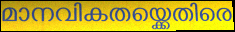
മാനവികതയ്ക്കെതിരെ